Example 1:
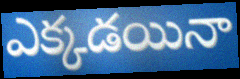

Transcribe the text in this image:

ఎక్కడయినా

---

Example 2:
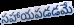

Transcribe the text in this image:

సహాయపడడమే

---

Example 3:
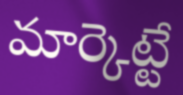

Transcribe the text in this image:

మార్కెట్టే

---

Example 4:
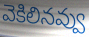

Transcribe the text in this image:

వెకిలినవ్వు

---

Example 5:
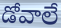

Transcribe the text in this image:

డోవాలే